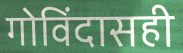
गोविंदासही